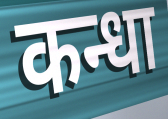
कन्धा